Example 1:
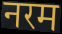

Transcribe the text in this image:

नरम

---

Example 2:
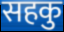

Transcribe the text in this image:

सहकु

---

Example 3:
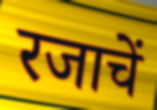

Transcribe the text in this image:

रजाचें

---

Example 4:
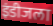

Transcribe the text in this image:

इंडीजला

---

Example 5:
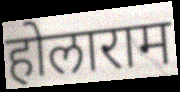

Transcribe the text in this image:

होलाराम